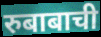
रुबाबाची